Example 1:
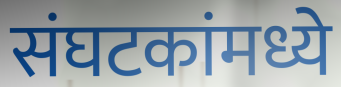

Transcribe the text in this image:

संघटकांमध्ये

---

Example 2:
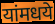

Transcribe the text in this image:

यांमधये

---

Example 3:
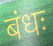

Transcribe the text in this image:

बंधः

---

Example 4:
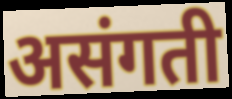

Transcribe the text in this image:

असंगती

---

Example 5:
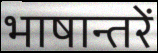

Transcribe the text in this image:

भाषान्तरें